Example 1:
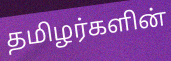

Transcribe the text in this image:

தமிழர்களின்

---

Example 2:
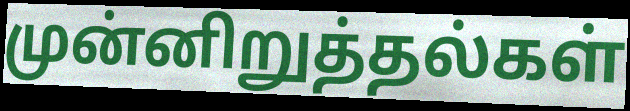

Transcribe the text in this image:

முன்னிறுத்தல்கள்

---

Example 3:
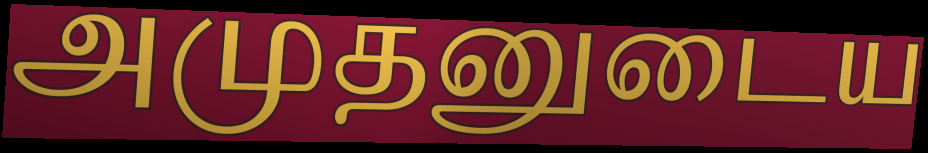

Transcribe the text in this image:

அமுதனுடைய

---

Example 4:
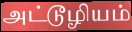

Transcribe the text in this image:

அட்டூழியம்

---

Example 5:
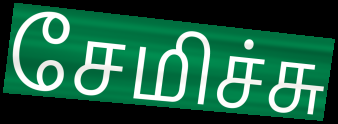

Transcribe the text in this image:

சேமிச்சு